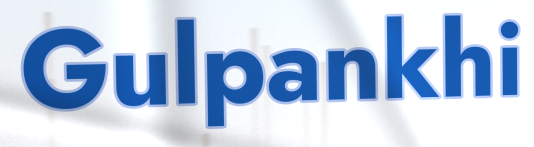
Gulpankhi